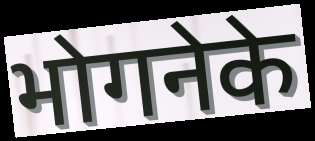
भोगनेके